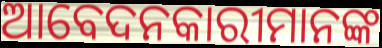
ଆବେଦନକାରୀମାନଙ୍କ